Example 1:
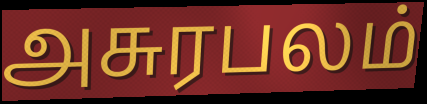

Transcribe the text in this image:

அசுரபலம்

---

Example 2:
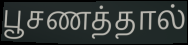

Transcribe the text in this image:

பூசணத்தால்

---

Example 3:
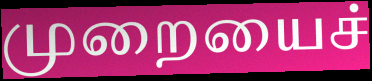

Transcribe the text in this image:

முறையைச்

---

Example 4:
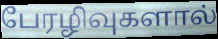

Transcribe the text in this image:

பேரழிவுகளால்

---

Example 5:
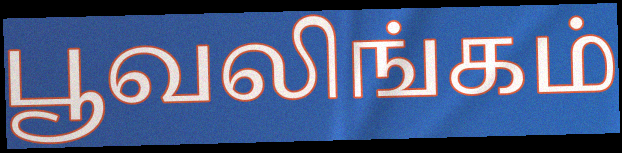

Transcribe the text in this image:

பூவலிங்கம்